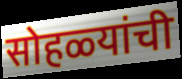
सोहळ्यांची